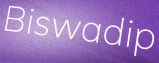
Biswadip